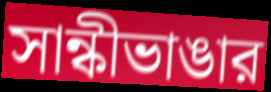
সান্কীভাঙার